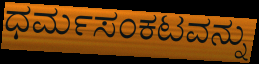
ಧರ್ಮಸಂಕಟವನ್ನು